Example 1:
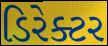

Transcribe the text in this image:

ડિરેક્ટર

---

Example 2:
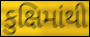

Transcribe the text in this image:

કુક્ષિમાંથી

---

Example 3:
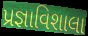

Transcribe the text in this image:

પ્રજ્ઞાવિશાલા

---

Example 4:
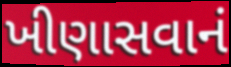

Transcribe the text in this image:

ખીણાસવાનં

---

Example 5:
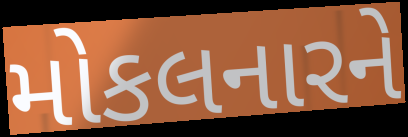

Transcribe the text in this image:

મોકલનારને